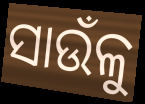
ସାଉଁଳୁ